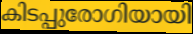
കിടപ്പുരോഗിയായി